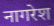
नागरेश